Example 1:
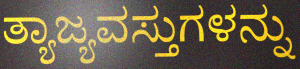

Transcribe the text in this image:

ತ್ಯಾಜ್ಯವಸ್ತುಗಳನ್ನು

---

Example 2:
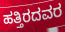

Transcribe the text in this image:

ಹತ್ತಿರದವರ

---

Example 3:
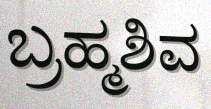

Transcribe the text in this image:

ಬ್ರಹ್ಮಶಿವ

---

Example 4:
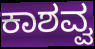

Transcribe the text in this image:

ಕಾಶವ್ವ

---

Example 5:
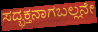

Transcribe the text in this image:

ಸದ್ಭಕ್ತನಾಗಬಲ್ಲನೇ